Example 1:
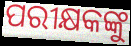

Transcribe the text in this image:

ପରୀକ୍ଷକଙ୍କୁ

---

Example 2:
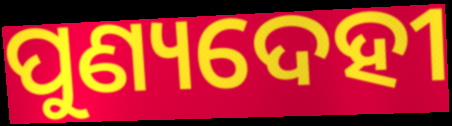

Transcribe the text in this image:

ପୁଣ୍ୟଦେହୀ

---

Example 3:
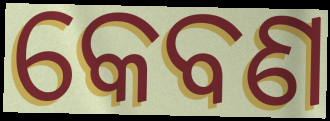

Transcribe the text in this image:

କେବଣ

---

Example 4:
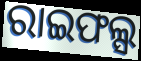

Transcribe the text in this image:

ରାଇଫଲ୍ସ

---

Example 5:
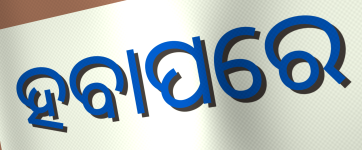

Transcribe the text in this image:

ହବାପରେ